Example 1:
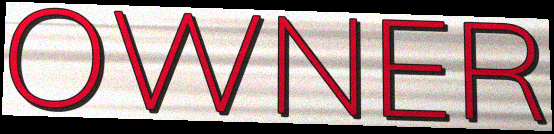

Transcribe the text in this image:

OWNER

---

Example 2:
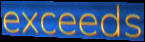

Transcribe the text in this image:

exceeds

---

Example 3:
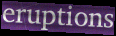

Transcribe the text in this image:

eruptions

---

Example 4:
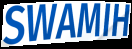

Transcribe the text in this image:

SWAMIH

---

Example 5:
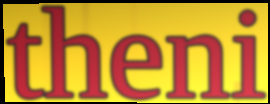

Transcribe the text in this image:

theni